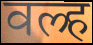
वल्ह